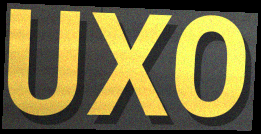
UXO